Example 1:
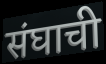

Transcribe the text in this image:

संघाची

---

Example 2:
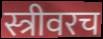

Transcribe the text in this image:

स्त्रीवरच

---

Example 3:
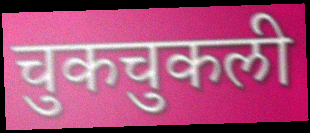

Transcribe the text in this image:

चुकचुकली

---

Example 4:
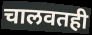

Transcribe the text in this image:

चालवतही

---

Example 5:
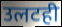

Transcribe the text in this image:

उलटही